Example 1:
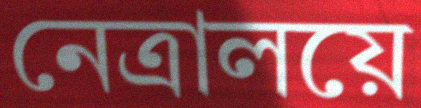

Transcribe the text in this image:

নেত্রালয়ে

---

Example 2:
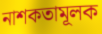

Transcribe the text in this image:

নাশকতামূলক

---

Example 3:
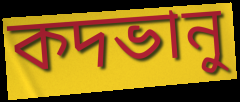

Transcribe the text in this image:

কদভানু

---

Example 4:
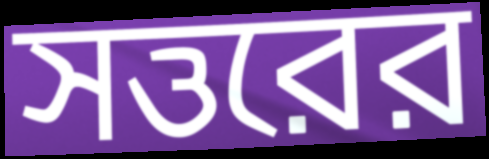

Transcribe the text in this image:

সত্তরের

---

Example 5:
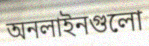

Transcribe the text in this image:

অনলাইনগুলো